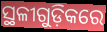
ସ୍ଥଳୀଗୁଡ଼ିକରେ